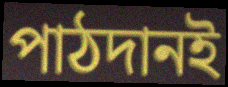
পাঠদানই